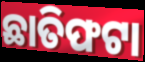
ଛାତିଫଟା